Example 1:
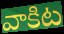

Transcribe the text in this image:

వాకిట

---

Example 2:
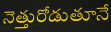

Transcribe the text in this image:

నెత్తురోడుతూనే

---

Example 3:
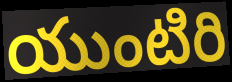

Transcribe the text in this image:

యుంటిరి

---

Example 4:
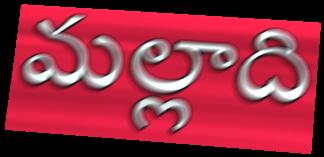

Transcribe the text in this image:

మల్లాది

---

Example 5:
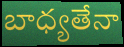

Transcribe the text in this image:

బాధ్యతేనా